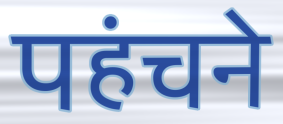
पहंचने